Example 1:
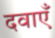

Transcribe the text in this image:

दवाएँ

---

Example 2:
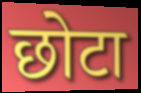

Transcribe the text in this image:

छोटा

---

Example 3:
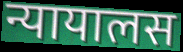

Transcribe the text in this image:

न्यायालस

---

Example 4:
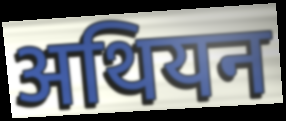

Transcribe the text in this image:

अथियन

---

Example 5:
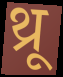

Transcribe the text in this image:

थ्रू